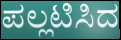
ಪಲ್ಲಟಿಸಿದ